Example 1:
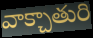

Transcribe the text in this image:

వాక్చాతురి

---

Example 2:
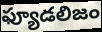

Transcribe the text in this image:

ఫ్యూడలిజం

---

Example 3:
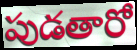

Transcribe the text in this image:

పుడతారో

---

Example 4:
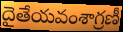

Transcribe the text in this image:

దైతేయవంశాగ్రణీ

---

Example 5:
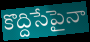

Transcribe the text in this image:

కొద్దిసేపైనా